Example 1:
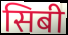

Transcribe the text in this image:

सिबी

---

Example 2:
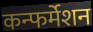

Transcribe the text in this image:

कन्‍फर्मेशन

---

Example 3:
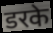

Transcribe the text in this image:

डरके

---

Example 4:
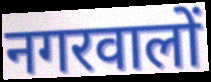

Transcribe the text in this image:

नगरवालों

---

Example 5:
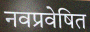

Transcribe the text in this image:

नवप्रवेषित